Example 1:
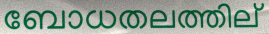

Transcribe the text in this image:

ബോധതലത്തില്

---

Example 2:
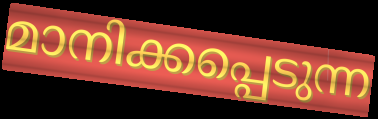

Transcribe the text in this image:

മാനിക്കപ്പെടുന്ന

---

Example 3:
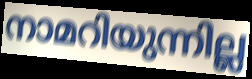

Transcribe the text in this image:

നാമറിയുന്നില്ല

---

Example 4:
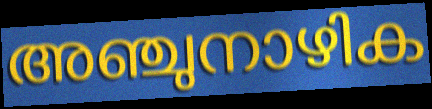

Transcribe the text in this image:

അഞ്ചുനാഴിക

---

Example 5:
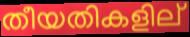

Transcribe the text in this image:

തീയതികളില്